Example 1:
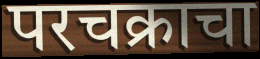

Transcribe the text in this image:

परचक्राचा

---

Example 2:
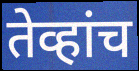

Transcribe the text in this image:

तेव्हांच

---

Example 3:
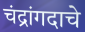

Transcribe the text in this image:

चंद्रांगदाचे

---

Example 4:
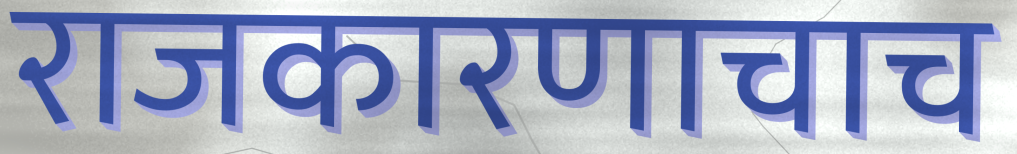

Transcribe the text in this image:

राजकारणाचाच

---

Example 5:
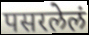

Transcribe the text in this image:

पसरलेलं